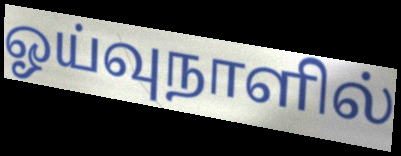
ஓய்வுநாளில்